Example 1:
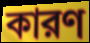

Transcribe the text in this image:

কারণ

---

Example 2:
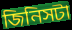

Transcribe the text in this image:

জিনিসটা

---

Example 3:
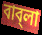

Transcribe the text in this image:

বাব্‌লা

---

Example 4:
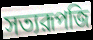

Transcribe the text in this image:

সত্যরূপজি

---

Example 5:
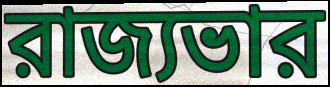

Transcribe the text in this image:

রাজ্যভার